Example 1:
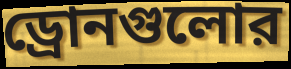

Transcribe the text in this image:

ড্রোনগুলোর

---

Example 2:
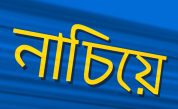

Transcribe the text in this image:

নাচিয়ে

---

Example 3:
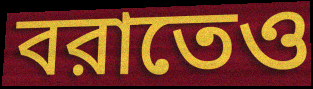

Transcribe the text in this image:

বরাতেও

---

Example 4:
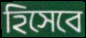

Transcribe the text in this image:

হিসেবে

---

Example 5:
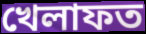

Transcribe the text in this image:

খেলাফত